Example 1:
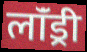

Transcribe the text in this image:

लॉंड्री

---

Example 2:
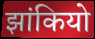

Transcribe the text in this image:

झांकियो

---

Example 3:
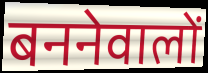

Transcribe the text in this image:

बननेवालों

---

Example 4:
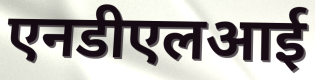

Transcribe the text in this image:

एनडीएलआई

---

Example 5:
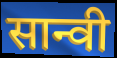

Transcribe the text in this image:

सान्वी